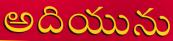
అదియును